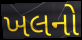
ખલનો